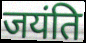
जयंति